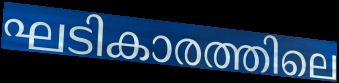
ഘടികാരത്തിലെ